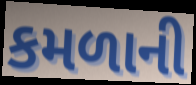
કમળાની